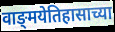
वाङ्‌मयेतिहासाच्या